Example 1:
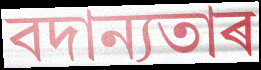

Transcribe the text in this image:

বদান্যতাৰ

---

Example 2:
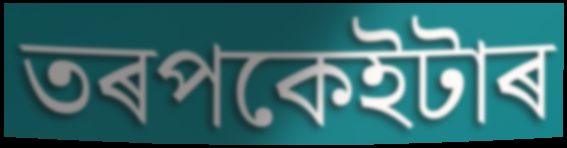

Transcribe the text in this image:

তৰপকেইটাৰ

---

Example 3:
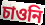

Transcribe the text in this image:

চাওনি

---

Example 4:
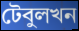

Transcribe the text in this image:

টেবুলখন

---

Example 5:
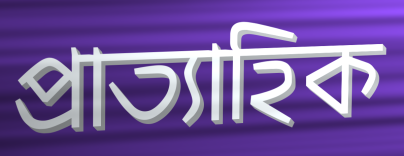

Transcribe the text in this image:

প্ৰাত্যাহিক